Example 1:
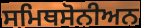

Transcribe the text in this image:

ਸਮਿਥਸੋਨੀਅਨ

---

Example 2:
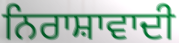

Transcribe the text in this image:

ਨਿਰਾਸ਼ਾਵਾਦੀ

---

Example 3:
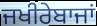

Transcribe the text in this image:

ਜਖੀਰੇਬਾਜਾਂ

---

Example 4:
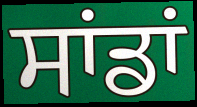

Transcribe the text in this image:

ਸਾਂਡਾਂ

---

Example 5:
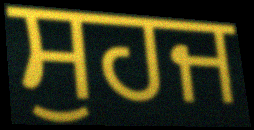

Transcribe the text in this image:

ਸੁਹਜ